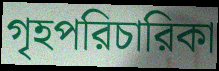
গৃহপরিচারিকা